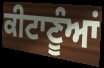
ਕੀਟਾਣੂੰਆਂ